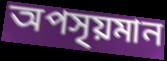
অপসৃয়মান